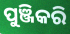
ପୁଞ୍ଜିକରି